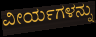
ವೀರ್ಯಗಳನ್ನು